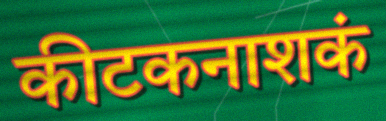
कीटकनाशकं